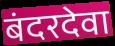
बंदरदेवा